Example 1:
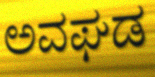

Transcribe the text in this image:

ಅವಘಡ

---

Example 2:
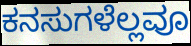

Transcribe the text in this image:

ಕನಸುಗಳೆಲ್ಲವೂ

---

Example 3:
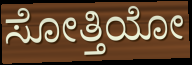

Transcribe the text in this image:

ಸೋತ್ತಿಯೋ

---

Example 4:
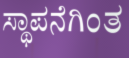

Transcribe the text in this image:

ಸ್ಥಾಪನೆಗಿಂತ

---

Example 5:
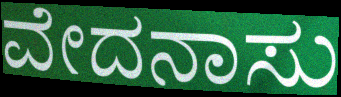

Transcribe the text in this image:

ವೇದನಾಸು